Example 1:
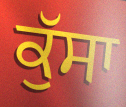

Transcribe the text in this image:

ਕੁੱਸਾ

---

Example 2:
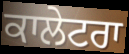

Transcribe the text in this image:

ਕਾਲੇਟਰਾ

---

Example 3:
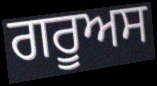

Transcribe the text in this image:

ਗਰੂਅਸ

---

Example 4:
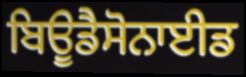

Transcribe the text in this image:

ਬਿਊਡੈਸੋਨਾਈਡ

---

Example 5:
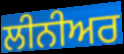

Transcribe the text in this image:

ਲੀਨੀਅਰ